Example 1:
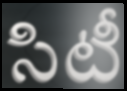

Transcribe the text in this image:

సిటీ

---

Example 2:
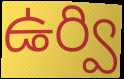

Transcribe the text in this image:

ఉర్వి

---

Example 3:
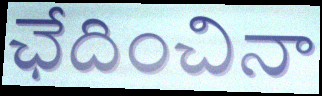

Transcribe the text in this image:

ఛేదించినా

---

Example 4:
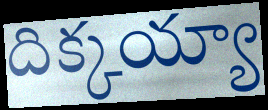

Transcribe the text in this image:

దిక్కయ్యా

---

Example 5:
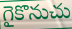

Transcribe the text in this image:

గైకొనుచు